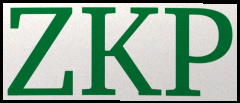
ZKP